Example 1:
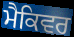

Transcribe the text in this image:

ਮੈਕਿਵਰ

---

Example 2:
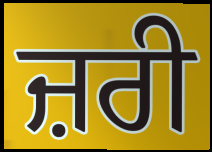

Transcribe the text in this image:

ਜ਼ਰੀ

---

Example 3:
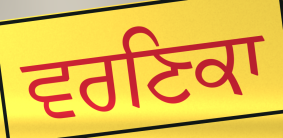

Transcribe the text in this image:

ਵਰਣਿਕਾ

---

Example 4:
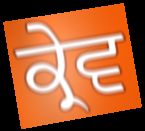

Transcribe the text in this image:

ਕ੍ਰੇਵ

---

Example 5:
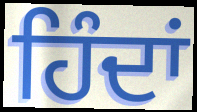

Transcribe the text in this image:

ਹਿੰਦਾਂ